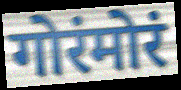
गोरंमोरं